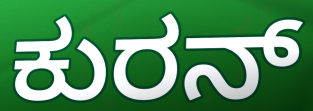
ಕುರನ್